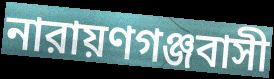
নারায়ণগঞ্জবাসী